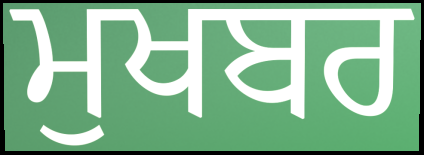
ਮੁਖਬਰ